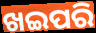
ଖଇପରି